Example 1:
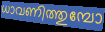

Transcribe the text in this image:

ധാവണിത്തുമ്പോ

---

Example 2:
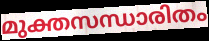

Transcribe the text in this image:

മുക്തസന്ധാരിതം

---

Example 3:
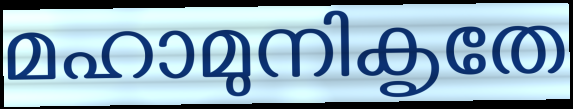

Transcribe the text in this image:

മഹാമുനികൃതേ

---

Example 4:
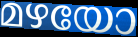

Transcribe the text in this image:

മഴയോ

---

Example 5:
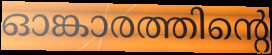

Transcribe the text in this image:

ഓങ്കാരത്തിന്റെ